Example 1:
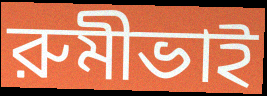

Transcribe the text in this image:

রুমীভাই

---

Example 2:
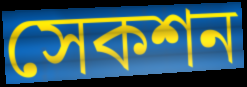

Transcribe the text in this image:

সেকশন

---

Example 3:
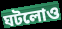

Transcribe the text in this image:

ঘটলোও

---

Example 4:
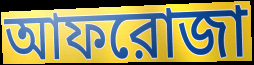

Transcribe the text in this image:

আফরোজা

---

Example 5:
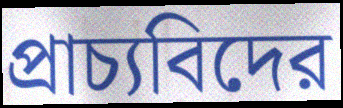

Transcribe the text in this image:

প্রাচ্যবিদের